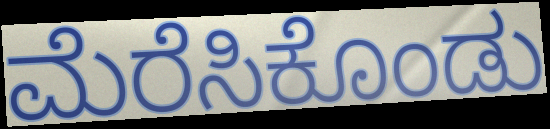
ಮೆರೆಸಿಕೊಂಡು